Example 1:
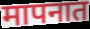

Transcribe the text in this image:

मापनात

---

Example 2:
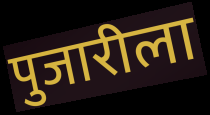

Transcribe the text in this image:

पुजारीला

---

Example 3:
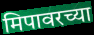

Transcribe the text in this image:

मिपावरच्या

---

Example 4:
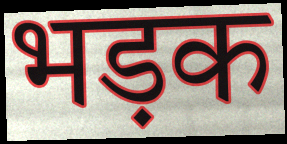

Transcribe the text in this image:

भड़क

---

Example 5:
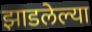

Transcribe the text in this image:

झाडलेल्या